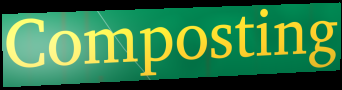
Composting